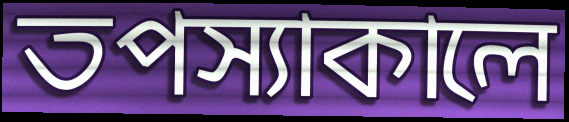
তপস্যাকালে